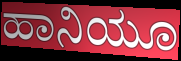
ಹಾನಿಯೂ